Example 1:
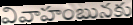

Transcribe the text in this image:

వివాహంబునకు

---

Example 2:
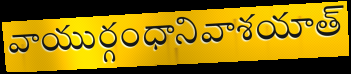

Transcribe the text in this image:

వాయుర్గంధానివాశయాత్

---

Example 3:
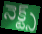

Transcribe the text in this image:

నెక్ట్స్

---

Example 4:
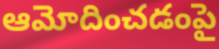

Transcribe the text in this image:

ఆమోదించడంపై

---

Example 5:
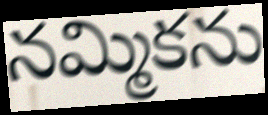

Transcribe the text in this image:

నమ్మికను